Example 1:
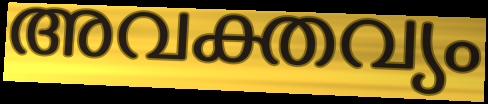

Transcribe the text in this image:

അവക്തവ്യം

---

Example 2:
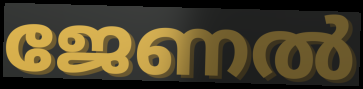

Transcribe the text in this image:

ജേണൽ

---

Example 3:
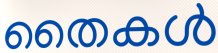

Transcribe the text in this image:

തൈകൾ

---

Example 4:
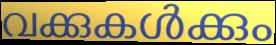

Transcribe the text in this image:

വക്കുകൾക്കും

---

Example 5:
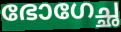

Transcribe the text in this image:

ഭോഗേച്ഛ